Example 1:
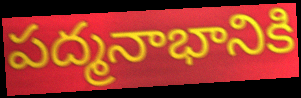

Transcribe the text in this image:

పద్మనాభానికి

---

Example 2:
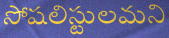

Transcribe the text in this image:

సోషలిస్టులమని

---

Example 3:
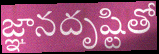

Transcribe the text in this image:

జ్ఞానదృష్టితో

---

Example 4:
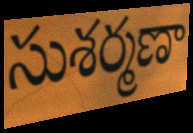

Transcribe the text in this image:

సుశర్మణా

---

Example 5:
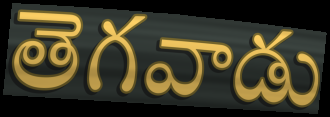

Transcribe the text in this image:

తెగవాడు